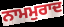
ਨਾਮਮੁਰਾਦ